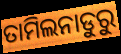
ତାମିଲନାଡୁରୁ